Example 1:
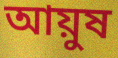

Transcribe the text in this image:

আয়ুষ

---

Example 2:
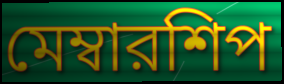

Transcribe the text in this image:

মেম্বারশিপ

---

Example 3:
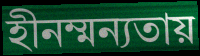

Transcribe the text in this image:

হীনম্মন্যতায়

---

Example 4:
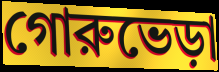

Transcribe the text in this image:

গোরুভেড়া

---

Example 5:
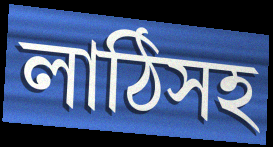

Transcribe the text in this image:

লাঠিসহ